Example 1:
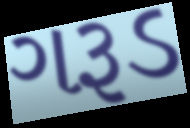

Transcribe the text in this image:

ગરૂડ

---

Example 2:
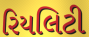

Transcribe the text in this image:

રિયલિટી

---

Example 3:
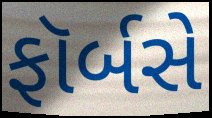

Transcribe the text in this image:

ફૉર્બસે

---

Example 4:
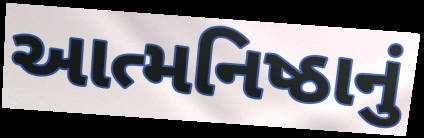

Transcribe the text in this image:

આત્મનિષ્ઠાનું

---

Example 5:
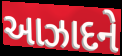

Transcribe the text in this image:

આઝાદને